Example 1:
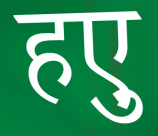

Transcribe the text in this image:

हएु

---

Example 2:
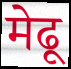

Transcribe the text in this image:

मेढू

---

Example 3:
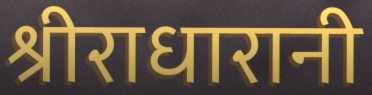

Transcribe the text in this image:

श्रीराधारानी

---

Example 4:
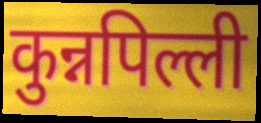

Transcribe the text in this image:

कुन्नपिल्ली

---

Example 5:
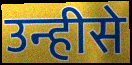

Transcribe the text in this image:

उन्हीसे